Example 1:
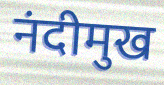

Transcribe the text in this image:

नंदीमुख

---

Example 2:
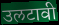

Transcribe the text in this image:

उलटावी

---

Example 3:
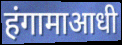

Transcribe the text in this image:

हंगामाआधी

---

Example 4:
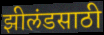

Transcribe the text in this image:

झीलंडसाठी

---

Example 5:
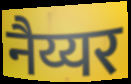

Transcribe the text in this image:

नैय्यर